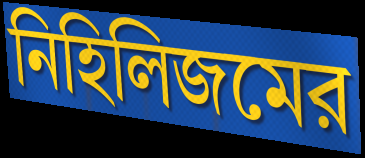
নিহিলিজমের